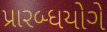
પ્રારબ્ધયોગે